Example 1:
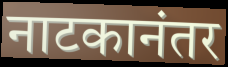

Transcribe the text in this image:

नाटकानंतर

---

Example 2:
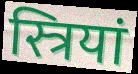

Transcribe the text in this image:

स्त्रियां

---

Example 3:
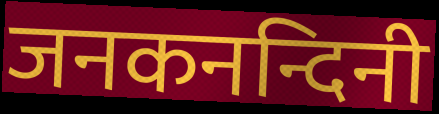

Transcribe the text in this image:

जनकनन्दिनी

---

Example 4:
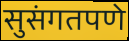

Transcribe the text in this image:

सुसंगतपणे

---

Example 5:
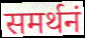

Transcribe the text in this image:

समर्थनं